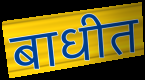
बाधीत